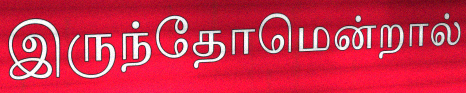
இருந்தோமென்றால்